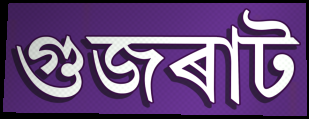
গুজৰাট